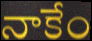
నాకేం